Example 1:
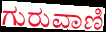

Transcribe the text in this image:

ಗುರುವಾಣಿ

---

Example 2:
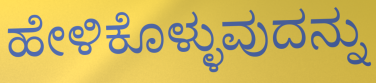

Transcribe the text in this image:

ಹೇಳಿಕೊಳ್ಳುವುದನ್ನು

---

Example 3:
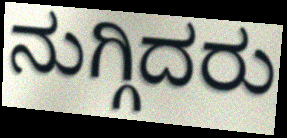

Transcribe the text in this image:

ನುಗ್ಗಿದರು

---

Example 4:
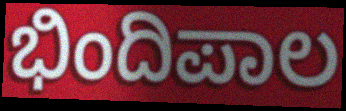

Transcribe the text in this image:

ಭಿಂದಿಪಾಲ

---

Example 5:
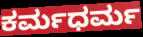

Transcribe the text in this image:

ಕರ್ಮಧರ್ಮ